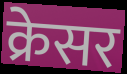
क्रेसर